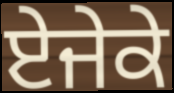
ਏਜੇਕੇ